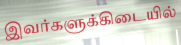
இவர்களுக்கிடையில்